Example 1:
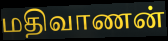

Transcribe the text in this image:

மதிவாணன்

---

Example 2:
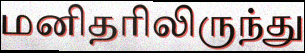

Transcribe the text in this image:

மனிதரிலிருந்து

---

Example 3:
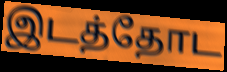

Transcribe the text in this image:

இடத்தோட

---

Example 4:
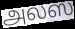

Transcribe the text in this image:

அலஸ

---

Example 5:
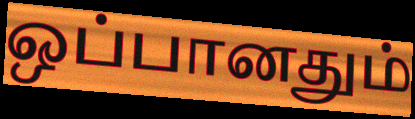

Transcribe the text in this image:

ஒப்பானதும்